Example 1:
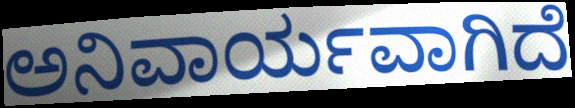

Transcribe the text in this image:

ಅನಿವಾರ್ಯವಾಗಿದೆ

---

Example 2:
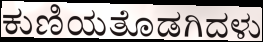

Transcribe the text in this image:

ಕುಣಿಯತೊಡಗಿದಳು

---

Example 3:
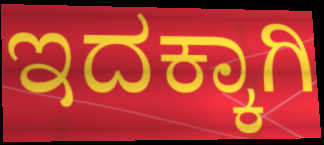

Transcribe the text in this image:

ಇದಕ್ಕಾಗಿ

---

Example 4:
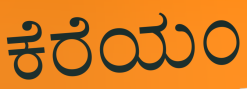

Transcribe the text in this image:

ಕೆರೆಯಂ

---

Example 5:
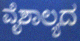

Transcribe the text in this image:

ವೈಶಾಲ್ಯದ